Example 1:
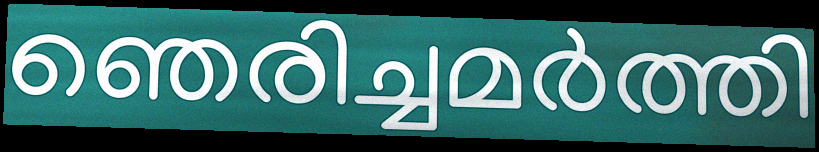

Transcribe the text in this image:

ഞെരിച്ചമർത്തി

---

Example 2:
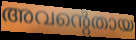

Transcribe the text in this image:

അവന്റെതായ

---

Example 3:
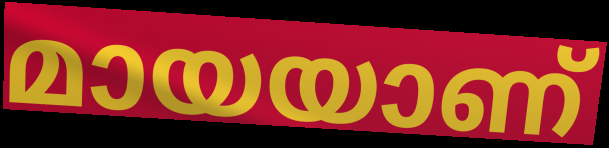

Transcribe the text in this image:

മായയാണ്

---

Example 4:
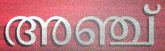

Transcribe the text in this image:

അഞ്ച്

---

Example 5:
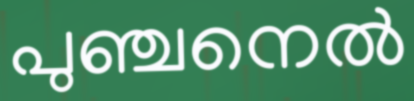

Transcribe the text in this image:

പുഞ്ചനെൽ